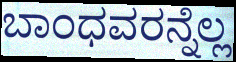
ಬಾಂಧವರನ್ನೆಲ್ಲ